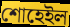
শোহেইল